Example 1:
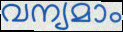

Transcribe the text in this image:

വന്യമാം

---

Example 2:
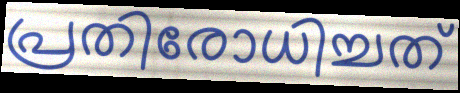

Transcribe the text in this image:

പ്രതിരോധിച്ചത്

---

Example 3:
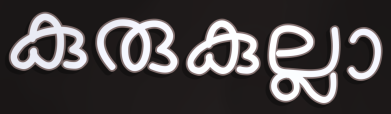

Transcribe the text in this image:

കുരുകുല്ലാ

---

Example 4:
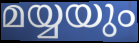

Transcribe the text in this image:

മയ്യയും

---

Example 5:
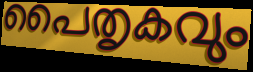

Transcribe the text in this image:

പൈതൃകവും